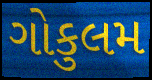
ગોકુલમ